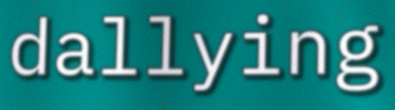
dallying